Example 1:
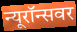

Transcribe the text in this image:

न्यूरॉन्सवर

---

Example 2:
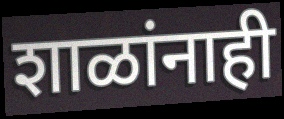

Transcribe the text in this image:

शाळांनाही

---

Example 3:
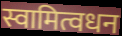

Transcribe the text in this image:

स्वामित्वधन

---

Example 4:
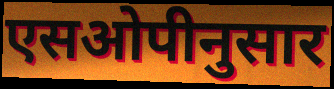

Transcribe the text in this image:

एसओपीनुसार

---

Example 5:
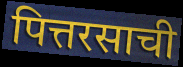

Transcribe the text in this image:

पित्तरसाची